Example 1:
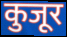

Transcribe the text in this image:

कुजूर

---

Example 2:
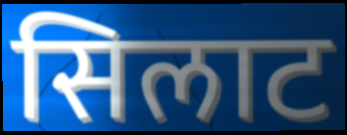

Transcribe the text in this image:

सिलाट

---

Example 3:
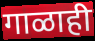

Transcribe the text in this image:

गाळाही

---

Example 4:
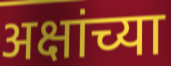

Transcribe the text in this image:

अक्षांच्या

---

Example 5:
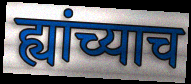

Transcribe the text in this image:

ह्यांच्याच